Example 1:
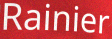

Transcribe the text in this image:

Rainier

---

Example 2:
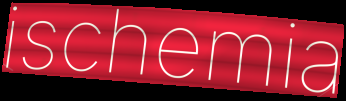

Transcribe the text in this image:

ischemia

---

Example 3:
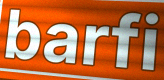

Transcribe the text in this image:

barfi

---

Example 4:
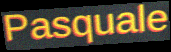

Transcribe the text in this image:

Pasquale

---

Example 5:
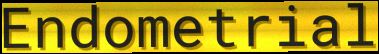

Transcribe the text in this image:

Endometrial